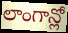
లాంగాన్లో